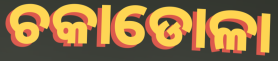
ଚକାଡୋଳା